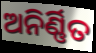
ଅନିର୍ଣ୍ଣିତ